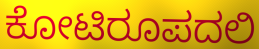
ಕೋಟಿರೂಪದಲಿ